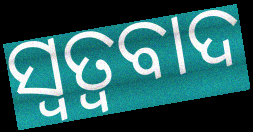
ସ୍ୱତ୍ୱବାଦ